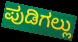
ಪುಡಿಗಲ್ಲು